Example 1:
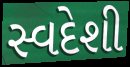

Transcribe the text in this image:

સ્વદેશી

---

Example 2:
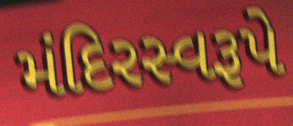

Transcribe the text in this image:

મંદિરસ્વરૂપે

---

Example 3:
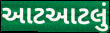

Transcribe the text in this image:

આટઆટલું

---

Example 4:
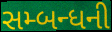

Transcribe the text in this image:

સમ્બન્ધની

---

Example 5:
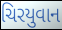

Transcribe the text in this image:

ચિરયુવાન